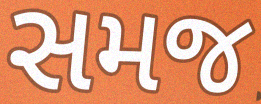
સમજ